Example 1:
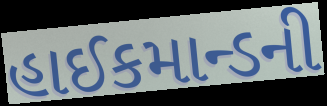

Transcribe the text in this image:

હાઈકમાન્ડની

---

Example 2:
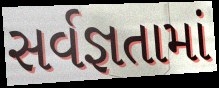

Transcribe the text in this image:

સર્વજ્ઞતામાં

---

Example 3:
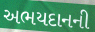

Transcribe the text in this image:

અભયદાનની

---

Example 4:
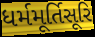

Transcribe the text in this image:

ધર્મમૂર્તિસૂરિ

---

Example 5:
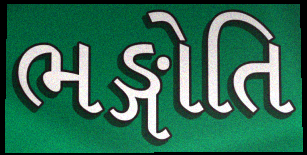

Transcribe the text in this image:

ભઙ્ગોતિ